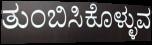
ತುಂಬಿಸಿಕೊಳ್ಳುವ